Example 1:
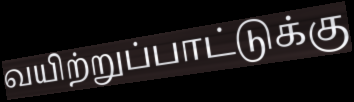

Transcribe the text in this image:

வயிற்றுப்பாட்டுக்கு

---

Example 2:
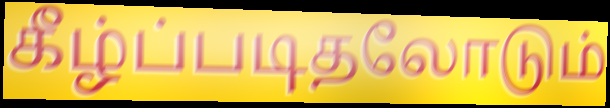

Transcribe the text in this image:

கீழ்ப்படிதலோடும்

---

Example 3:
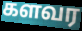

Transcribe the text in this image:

களவர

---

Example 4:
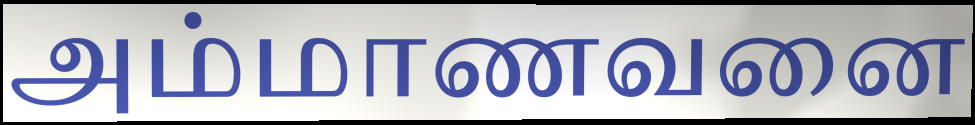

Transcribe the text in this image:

அம்மாணவனை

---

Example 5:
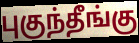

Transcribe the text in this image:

புகுந்தீங்கு